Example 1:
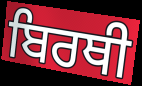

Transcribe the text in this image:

ਬਿਰਥੀ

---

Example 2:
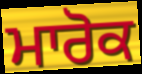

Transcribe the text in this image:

ਮਾਰੋਕ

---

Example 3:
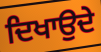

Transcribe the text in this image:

ਦਿਖਾਉਦੇ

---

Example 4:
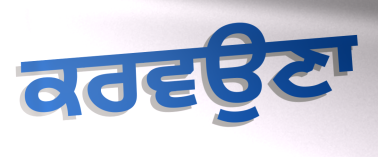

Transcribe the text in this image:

ਕਰਵਉਣਾ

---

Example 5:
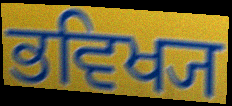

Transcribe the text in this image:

ਭਵਿਖ੍ਯ